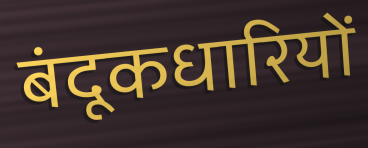
बंदूकधारियों